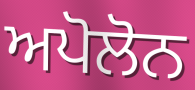
ਅਪੋਲੋਨ